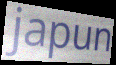
japun